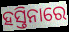
ହସ୍ତିନାରେ